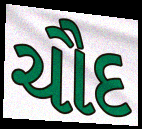
ચૌદ